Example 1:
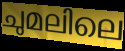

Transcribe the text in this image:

ചുമലിലെ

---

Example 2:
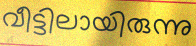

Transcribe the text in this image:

വീട്ടിലായിരുന്നു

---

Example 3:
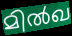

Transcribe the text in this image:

മിൽഖ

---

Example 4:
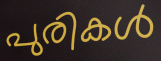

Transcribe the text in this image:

പുരികൾ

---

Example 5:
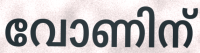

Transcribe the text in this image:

വോണിന്